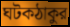
ঘটকঠাকুর